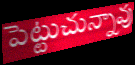
పెట్టుచున్నావు